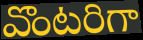
వొంటరిగా